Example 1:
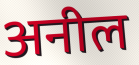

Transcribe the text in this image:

अनील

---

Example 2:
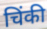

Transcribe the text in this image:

चिंकी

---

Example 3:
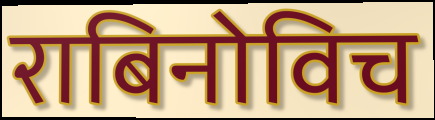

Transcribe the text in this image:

राबिनोविच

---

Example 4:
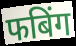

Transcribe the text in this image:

फबिंग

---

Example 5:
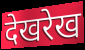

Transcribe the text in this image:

देखरेख